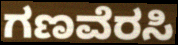
ಗಣವೆರಸಿ